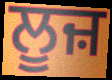
ਲੂਜ਼